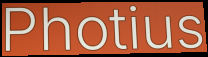
Photius